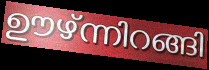
ഊഴ്ന്നിറങ്ങി